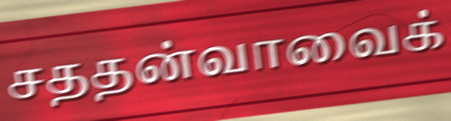
சததன்வாவைக்